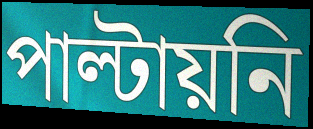
পাল্টায়নি